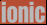
ionic